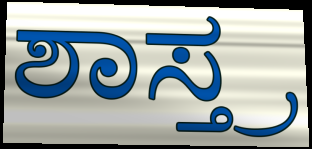
ಶಾಸ್ತ್ರ